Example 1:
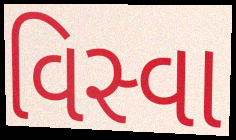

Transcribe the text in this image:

વિસ્વા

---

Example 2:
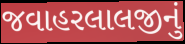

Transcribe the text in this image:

જવાહરલાલજીનું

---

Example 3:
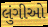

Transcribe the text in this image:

લુંગીઓ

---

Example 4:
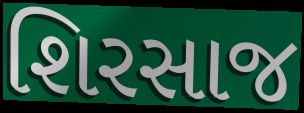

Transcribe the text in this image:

શિરસાજ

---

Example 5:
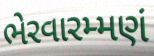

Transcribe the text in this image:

ભેરવારમ્મણં